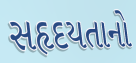
સહૃદયતાનો